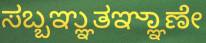
ಸಬ್ಬಞ್ಞುತಞ್ಞಾಣೇ